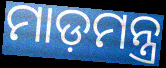
ମାଡ଼ମନ୍ତ୍ର